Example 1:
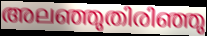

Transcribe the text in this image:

അലഞ്ഞുതിരിഞ്ഞു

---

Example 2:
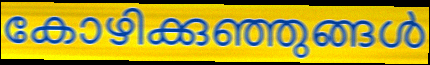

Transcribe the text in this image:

കോഴിക്കുഞ്ഞുങ്ങൾ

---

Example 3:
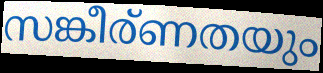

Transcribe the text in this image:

സങ്കീര്ണതയും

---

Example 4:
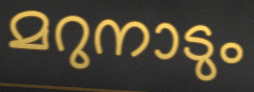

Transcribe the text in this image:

മറുനാടും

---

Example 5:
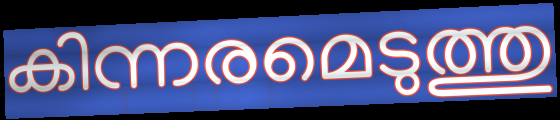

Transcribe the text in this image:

കിന്നരമെടുത്തു